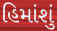
હિમાંશું